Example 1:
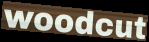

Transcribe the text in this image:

woodcut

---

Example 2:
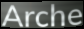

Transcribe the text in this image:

Arche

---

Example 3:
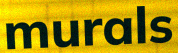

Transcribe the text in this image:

murals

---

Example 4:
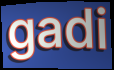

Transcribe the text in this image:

gadi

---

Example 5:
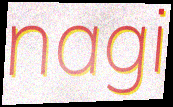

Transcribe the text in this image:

nagi